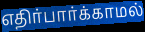
எதிர்பார்க்காமல்